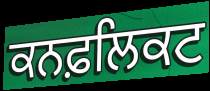
ਕਨਫ਼ਲਿਕਟ